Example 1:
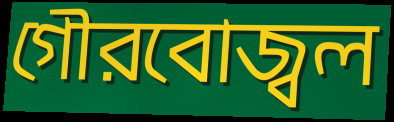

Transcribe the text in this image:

গৌরবোজ্বল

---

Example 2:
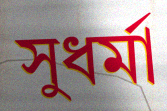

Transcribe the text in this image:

সুধর্মা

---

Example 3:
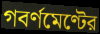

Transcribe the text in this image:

গবর্ণমেণ্টের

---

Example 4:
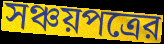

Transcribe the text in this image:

সঞ্চয়পত্রের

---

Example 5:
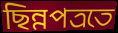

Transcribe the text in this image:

ছিন্নপত্রতে